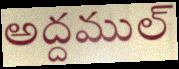
అద్దముల్